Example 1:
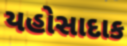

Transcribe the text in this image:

યહોસાદાક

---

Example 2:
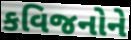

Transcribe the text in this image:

કવિજનોને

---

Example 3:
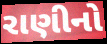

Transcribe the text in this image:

રાણીનો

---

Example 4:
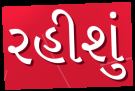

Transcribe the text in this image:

રહીશું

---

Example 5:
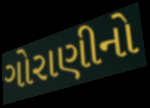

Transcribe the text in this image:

ગોરાણીનો